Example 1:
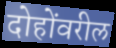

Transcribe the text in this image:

दोहोंवरील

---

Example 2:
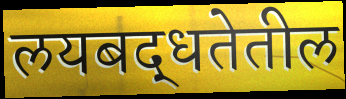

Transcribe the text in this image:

लयबद्धतेतील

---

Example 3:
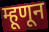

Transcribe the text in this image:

म्हूणून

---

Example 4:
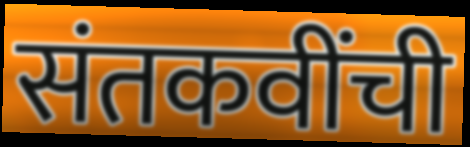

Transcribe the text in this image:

संतकवींची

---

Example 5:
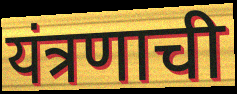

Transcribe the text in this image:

यंत्रणाची